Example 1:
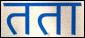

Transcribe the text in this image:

तता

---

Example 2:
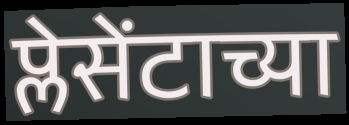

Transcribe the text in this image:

प्लेसेंटाच्या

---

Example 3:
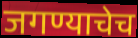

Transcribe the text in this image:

जगण्याचेच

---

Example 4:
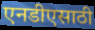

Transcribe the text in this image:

एनडीएसाठी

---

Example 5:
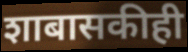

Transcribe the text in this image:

शाबासकीही